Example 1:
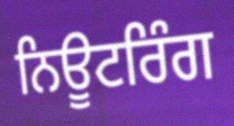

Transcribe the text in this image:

ਨਿਊਟਰਿੰਗ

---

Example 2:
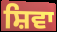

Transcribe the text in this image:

ਸ਼ਿਵਾ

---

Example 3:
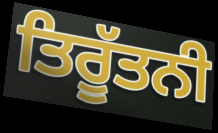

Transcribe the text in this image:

ਤਿਰੂੱਤਨੀ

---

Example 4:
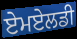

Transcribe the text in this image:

ਏਮਏਲਡੀ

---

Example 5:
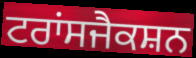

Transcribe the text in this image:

ਟਰਾਂਸਜੈਕਸ਼ਨ